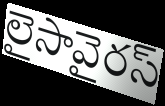
లైసావైరస్